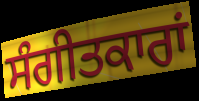
ਸੰਗੀਤਕਾਰਾਂ